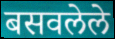
बसवलेले